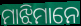
ମାଝିମାନେ